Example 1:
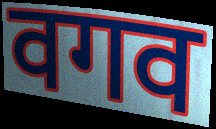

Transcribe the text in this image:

वगव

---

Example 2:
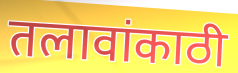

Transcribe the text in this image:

तलावांकाठी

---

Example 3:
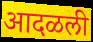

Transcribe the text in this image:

आदळली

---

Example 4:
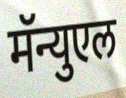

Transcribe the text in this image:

मॅन्युएल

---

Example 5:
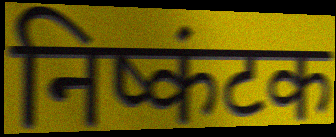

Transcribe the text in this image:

निष्कंटक